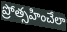
ప్రోత్సహించేలా